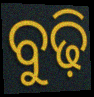
ବୁଢ଼ି